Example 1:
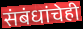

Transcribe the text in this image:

संबंधांचेही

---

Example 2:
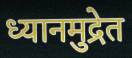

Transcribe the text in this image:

ध्यानमुद्रेत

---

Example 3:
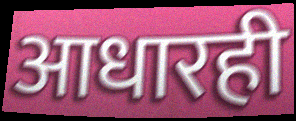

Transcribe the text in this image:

आधारही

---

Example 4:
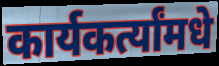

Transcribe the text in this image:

कार्यकर्त्यांमधे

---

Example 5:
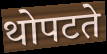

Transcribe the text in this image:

थोपटते